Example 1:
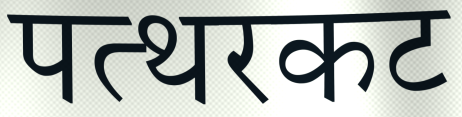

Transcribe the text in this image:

पत्थरकट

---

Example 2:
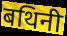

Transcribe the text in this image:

बथिनी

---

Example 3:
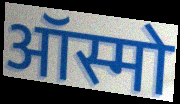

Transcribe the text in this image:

ऑस्मो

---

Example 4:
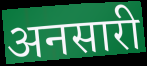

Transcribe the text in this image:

अनसारी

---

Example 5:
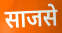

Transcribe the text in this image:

साजसे